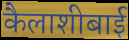
कैलाशीबाई